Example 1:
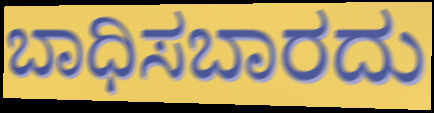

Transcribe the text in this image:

ಬಾಧಿಸಬಾರದು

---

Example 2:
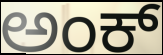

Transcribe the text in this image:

ಅಂಕ್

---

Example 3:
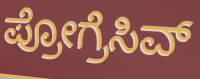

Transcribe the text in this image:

ಪ್ರೋಗ್ರೆಸಿವ್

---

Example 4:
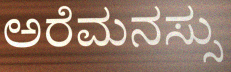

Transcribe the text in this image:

ಅರೆಮನಸ್ಸು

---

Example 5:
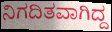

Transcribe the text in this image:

ನಿಗದಿತವಾಗಿದ್ದ